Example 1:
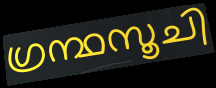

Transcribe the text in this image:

ഗ്രന്ഥസൂചി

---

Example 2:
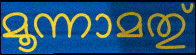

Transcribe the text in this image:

മൂന്നാമതു്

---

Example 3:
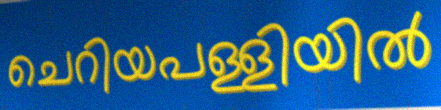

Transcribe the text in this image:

ചെറിയപള്ളിയിൽ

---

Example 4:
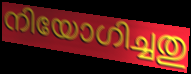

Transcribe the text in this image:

നിയോഗിച്ചതു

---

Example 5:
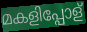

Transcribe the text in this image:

മകളിപ്പോള്